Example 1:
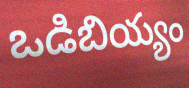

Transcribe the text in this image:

ఒడిబియ్యం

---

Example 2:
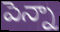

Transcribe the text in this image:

పెన్నా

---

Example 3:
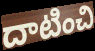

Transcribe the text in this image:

దాటించి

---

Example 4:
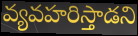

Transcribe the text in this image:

వ్యవహరిస్తాడని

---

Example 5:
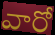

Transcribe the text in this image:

వారో